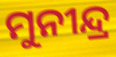
ମୁନୀନ୍ଦ୍ର